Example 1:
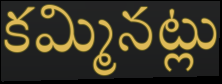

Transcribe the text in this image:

కమ్మినట్లు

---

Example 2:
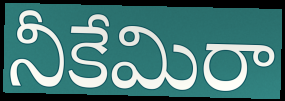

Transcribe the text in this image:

నీకేమిరా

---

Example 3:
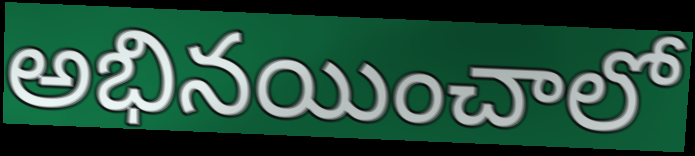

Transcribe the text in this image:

అభినయించాలో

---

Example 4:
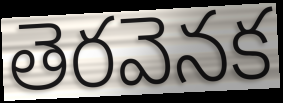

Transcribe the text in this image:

తెరవెనక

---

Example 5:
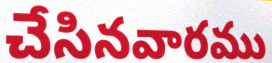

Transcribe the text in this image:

చేసినవారము